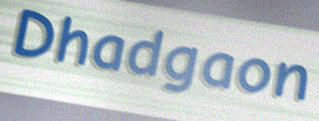
Dhadgaon